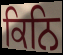
ਕਿਨਿ